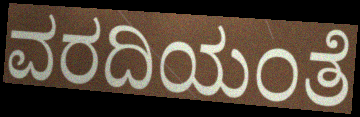
ವರದಿಯಂತೆ